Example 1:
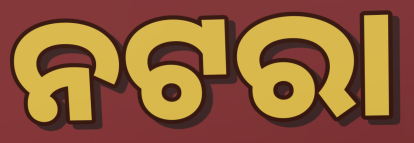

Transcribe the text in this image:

ନଟରା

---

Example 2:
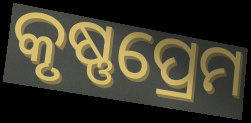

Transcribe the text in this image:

କୃଷ୍ଣପ୍ରେମ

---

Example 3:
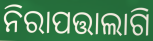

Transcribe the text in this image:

ନିରାପତ୍ତାଲାଗି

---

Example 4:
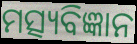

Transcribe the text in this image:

ମତ୍ସ୍ୟବିଜ୍ଞାନ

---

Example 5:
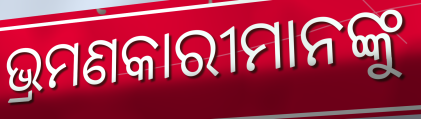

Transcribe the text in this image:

ଭ୍ରମଣକାରୀମାନଙ୍କୁ